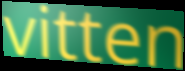
vitten